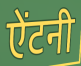
ऐंटनी